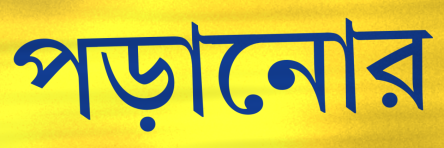
পড়ানোর